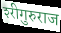
श्रीगुरुराज